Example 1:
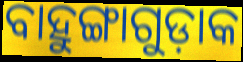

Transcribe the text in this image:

ବାହୁଙ୍ଗାଗୁଡ଼ାକ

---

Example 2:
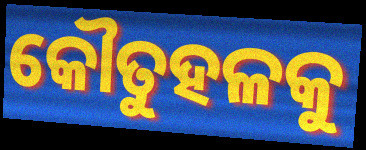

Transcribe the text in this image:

କୌତୁହଳକୁ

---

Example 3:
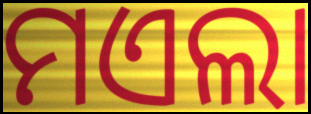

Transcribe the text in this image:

ମଏଲା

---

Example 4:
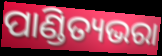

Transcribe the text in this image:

ପାଣ୍ଡିତ୍ୟଭରା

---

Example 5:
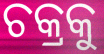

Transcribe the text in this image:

ଚକ୍ରକୁ